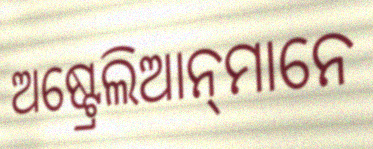
ଅଷ୍ଟ୍ରେଲିଆନ୍‌ମାନେ